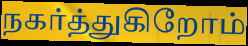
நகர்த்துகிறோம்